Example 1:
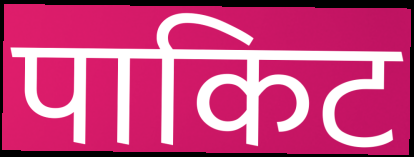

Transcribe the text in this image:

पाकिट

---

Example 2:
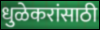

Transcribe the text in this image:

धुळेकरांसाठी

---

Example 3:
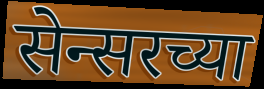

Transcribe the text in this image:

सेन्सरच्या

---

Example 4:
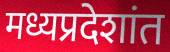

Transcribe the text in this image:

मध्यप्रदेशांत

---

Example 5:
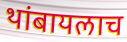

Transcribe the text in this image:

थांबायलाच